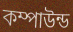
কম্পাউন্ড